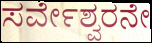
ಸರ್ವೇಶ್ವರನೇ